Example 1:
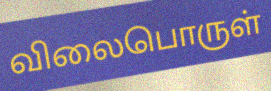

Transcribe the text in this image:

விலைபொருள்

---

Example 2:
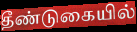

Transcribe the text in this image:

தீண்டுகையில்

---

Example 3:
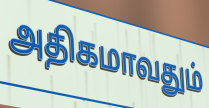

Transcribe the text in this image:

அதிகமாவதும்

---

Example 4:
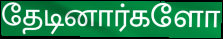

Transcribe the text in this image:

தேடினார்களோ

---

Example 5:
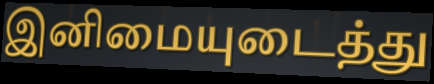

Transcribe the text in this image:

இனிமையுடைத்து